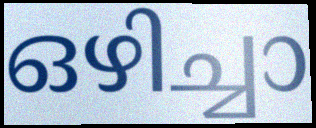
ഒഴിച്ചാ